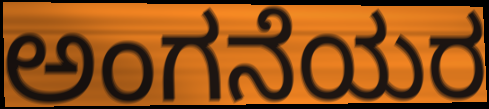
ಅಂಗನೆಯರ